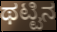
ಥಟ್ಟಿನ